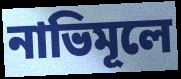
নাভিমূলে